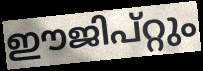
ഈജിപ്റ്റും